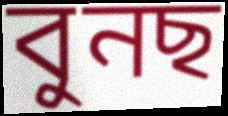
বুনছ